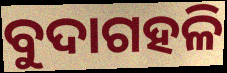
ବୁଦାଗହଳି